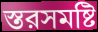
স্তরসমষ্টি